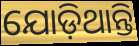
ଯୋଡ଼ିଥାନ୍ତି